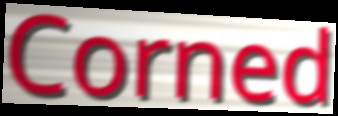
Corned